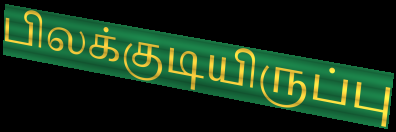
பிலக்குடியிருப்பு